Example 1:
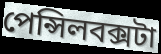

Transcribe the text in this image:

পেন্সিলবক্সটা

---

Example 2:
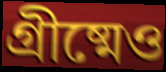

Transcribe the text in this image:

গ্রীষ্মেও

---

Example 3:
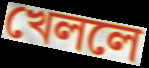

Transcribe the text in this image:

খেললে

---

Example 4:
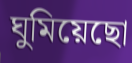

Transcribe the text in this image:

ঘুমিয়েছো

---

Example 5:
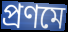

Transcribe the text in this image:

প্রণমে